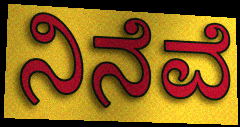
ನಿನೆವೆ